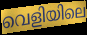
വെളിയിലെ